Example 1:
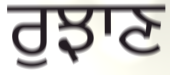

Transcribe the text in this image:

ਰੁਝਾਣ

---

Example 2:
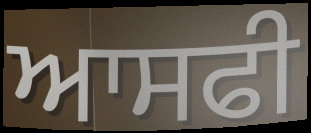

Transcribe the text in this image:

ਆਸਫੀ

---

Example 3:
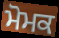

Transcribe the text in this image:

ਮੋਮਕ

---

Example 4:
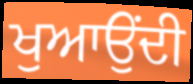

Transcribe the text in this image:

ਖੁਆਉਂਦੀ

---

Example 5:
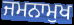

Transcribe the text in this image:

ਜਮਨਾਮੁਖ